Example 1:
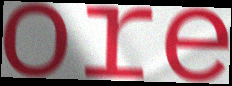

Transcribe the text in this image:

ore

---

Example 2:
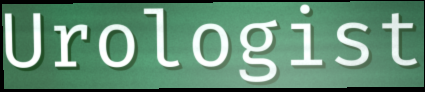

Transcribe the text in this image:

Urologist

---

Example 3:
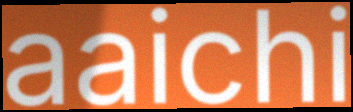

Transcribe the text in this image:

aaichi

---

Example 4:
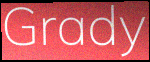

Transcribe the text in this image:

Grady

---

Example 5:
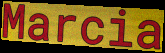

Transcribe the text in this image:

Marcia